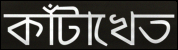
কাঁটাখেত